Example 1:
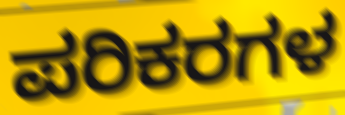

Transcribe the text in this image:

ಪರಿಕರಗಳ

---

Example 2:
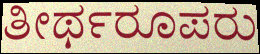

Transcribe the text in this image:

ತೀರ್ಥರೂಪರು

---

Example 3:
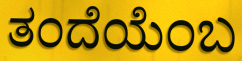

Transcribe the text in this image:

ತಂದೆಯೆಂಬ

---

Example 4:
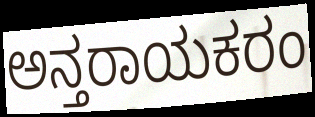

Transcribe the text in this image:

ಅನ್ತರಾಯಕರಂ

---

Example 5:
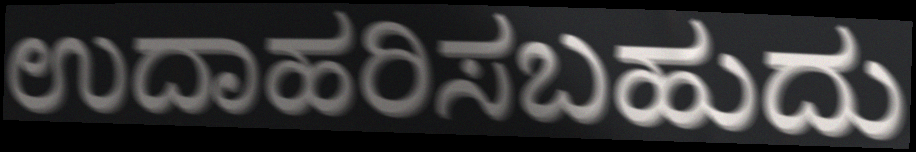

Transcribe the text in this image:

ಉದಾಹರಿಸಬಹುದು